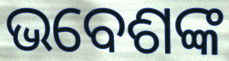
ଭବେଶଙ୍କ